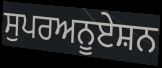
ਸੁਪਰਅਨੂਏਸ਼ਨ